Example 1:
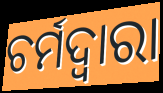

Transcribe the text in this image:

ଚର୍ମଦ୍ଵାରା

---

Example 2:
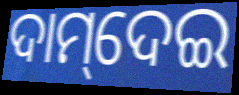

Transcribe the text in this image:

ଦାମ୍‌ଦେଇ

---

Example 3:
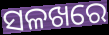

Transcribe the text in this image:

ସଳଖରେ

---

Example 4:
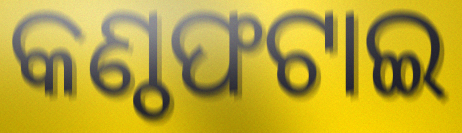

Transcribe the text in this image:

କଣ୍ଠଫଟାଇ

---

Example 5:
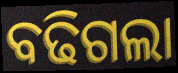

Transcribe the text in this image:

ବଢିଗଲା